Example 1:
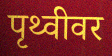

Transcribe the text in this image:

पृथ्वीवर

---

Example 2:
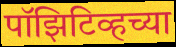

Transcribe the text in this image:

पॉझिटिव्हच्या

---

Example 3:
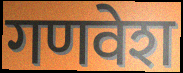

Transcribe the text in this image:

गणवेश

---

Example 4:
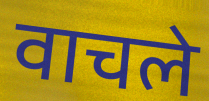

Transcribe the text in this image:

वाचले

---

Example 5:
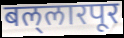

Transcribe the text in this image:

बल्लारपूर